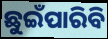
ଛୁଇଁପାରିବି